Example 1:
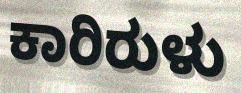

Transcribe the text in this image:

ಕಾರಿರುಳು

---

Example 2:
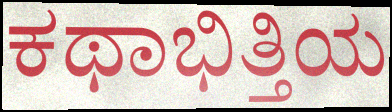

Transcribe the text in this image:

ಕಥಾಭಿತ್ತಿಯ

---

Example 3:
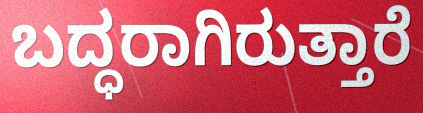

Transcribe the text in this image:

ಬದ್ಧರಾಗಿರುತ್ತಾರೆ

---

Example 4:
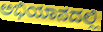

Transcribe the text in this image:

ಅಭಿಯಾನದಲ್ಲಿ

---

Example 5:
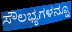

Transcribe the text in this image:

ಸೌಲಭ್ಯಗಳನ್ನೂ